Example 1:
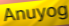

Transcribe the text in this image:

Anuyog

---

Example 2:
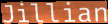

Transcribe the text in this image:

Jillian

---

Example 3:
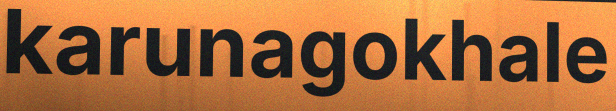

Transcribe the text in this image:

karunagokhale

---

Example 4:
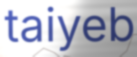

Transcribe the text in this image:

taiyeb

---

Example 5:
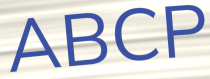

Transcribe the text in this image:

ABCP